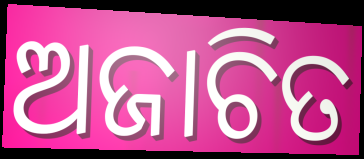
ଅଜାଚିତ